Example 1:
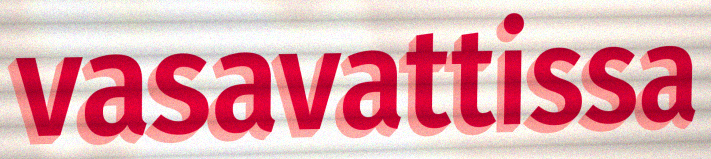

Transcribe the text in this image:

vasavattissa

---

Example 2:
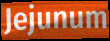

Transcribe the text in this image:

Jejunum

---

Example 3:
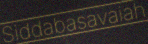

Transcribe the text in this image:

Siddabasavaiah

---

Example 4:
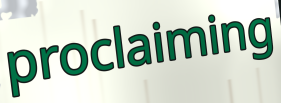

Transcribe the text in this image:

proclaiming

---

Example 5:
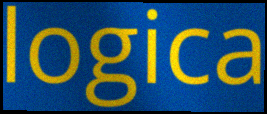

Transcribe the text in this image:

logica